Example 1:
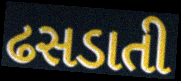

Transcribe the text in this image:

ઢસડાતી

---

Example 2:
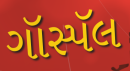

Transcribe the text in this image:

ગૉસ્પૅલ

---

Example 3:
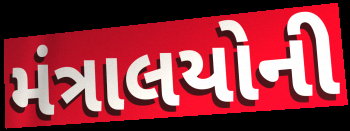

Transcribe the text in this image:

મંત્રાલયોની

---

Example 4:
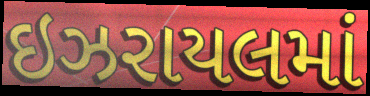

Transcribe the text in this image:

ઇઝરાયલમાં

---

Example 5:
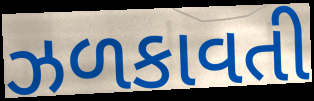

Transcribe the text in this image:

ઝળકાવતી